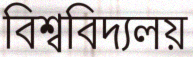
বিশ্ববিদ্যলয়